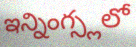
ఇన్నింగ్స్లలో